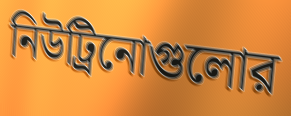
নিউট্রিনোগুলোর